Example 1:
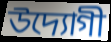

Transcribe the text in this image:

উদ্যোগী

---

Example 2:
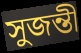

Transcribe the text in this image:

সুজন্তী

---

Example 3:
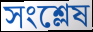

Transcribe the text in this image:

সংশ্লেষ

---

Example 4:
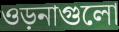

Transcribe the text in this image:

ওড়নাগুলো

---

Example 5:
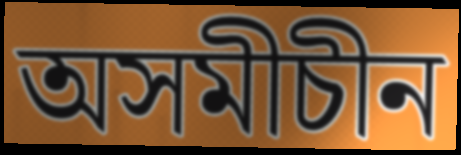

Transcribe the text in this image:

অসমীচীন